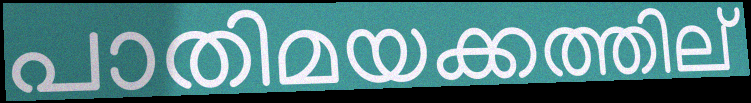
പാതിമയക്കത്തില്